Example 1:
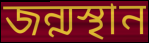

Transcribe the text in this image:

জন্মস্থান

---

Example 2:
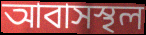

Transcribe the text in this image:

আবাসস্থল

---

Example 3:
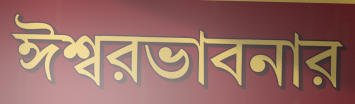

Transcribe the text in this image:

ঈশ্বরভাবনার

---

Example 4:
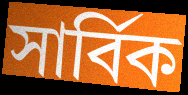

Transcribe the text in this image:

সার্বিক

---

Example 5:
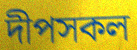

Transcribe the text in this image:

দীপসকল